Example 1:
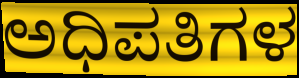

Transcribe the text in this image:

ಅಧಿಪತಿಗಳ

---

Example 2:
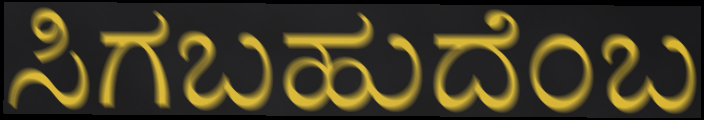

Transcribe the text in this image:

ಸಿಗಬಹುದೆಂಬ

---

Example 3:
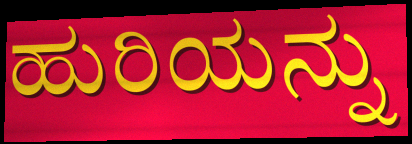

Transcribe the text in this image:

ಹುರಿಯನ್ನು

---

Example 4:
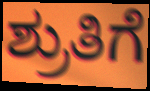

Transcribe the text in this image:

ಶ್ರುತಿಗೆ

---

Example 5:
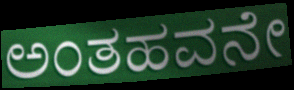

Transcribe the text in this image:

ಅಂತಹವನೇ